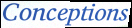
Conceptions